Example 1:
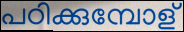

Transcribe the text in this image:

പഠിക്കുമ്പോള്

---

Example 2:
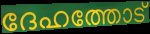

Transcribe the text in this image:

ദേഹത്തോട്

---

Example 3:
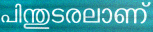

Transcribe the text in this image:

പിന്തുടരലാണ്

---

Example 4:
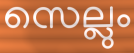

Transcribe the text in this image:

സെല്ലും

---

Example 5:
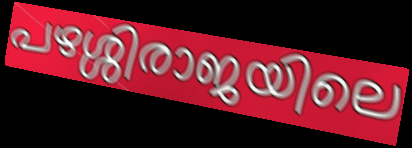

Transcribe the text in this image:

പഴശ്ശിരാജയിലെ